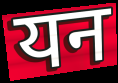
यन